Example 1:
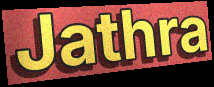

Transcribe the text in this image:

Jathra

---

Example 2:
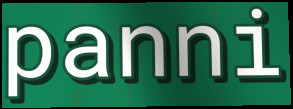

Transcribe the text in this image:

panni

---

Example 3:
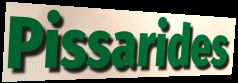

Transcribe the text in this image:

Pissarides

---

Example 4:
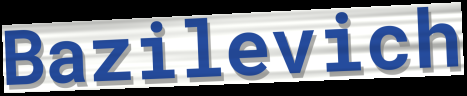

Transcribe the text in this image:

Bazilevich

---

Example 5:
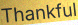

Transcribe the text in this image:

Thankful